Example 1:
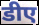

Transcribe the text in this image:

डीए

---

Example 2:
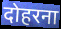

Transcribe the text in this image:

दोहरना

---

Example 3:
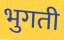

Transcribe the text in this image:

भुगती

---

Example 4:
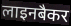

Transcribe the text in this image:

लाइनबैकर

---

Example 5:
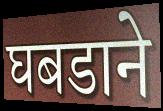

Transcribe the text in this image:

घबडाने